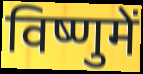
विष्णुमें